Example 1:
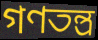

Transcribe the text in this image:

গণতন্ত্ৰ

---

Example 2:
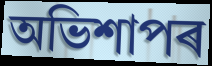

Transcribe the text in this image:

অভিশাপৰ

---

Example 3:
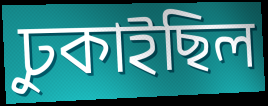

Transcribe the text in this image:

ঢুকাইছিল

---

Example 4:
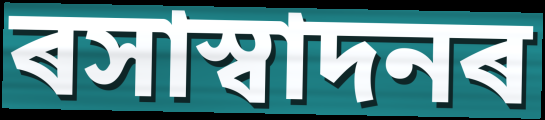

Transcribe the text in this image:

ৰসাস্বাদনৰ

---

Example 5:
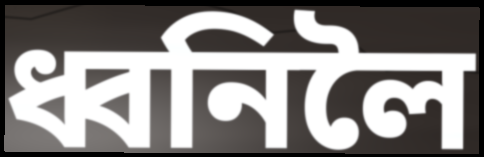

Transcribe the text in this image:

ধ্বনিলৈ